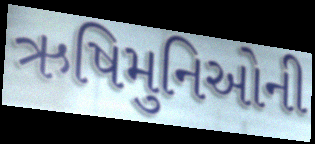
ઋષિમુનિઓની